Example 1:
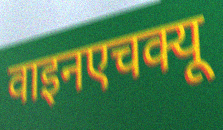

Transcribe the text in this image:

वाइनएचक्यू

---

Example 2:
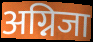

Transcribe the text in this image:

अग्निजा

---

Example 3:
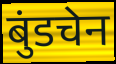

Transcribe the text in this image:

बुंडचेन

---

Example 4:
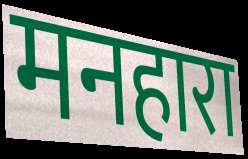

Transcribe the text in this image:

मनहारा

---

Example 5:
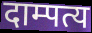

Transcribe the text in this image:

दाम्पत्य